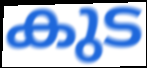
കുട